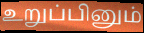
உறுப்பினும்